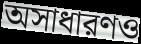
অসাধারণও